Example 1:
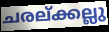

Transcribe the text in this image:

ചരല്ക്കല്ലു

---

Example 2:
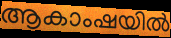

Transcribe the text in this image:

ആകാംഷയിൽ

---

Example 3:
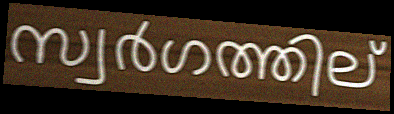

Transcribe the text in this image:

സ്വർഗത്തില്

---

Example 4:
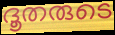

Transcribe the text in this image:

ദൂതരുടെ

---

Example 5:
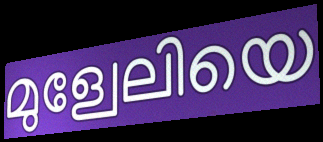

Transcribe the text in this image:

മുള്വേലിയെ